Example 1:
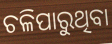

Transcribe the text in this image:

ଚଳିପାରୁଥିବା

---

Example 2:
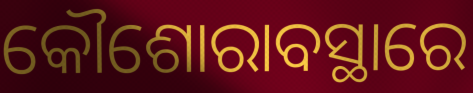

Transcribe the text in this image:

କୌଶୋରାବସ୍ଥାରେ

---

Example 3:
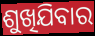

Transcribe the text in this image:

ଶୁଖିଯିବାର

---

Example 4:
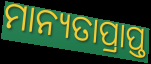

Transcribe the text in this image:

ମାନ୍ୟତାପ୍ରାପ୍ତ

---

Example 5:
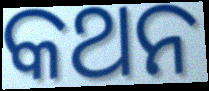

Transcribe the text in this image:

କଥନ